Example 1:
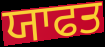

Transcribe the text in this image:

ਯਾਫਤ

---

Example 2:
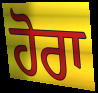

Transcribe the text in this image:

ਹੋਰਾ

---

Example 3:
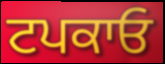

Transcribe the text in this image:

ਟਪਕਾਓ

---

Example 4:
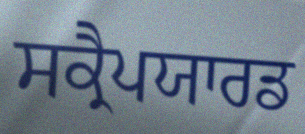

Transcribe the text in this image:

ਸਕ੍ਰੈਪਯਾਰਡ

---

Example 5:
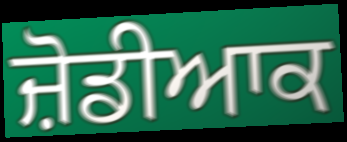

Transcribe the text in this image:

ਜ਼ੋਡੀਆਕ